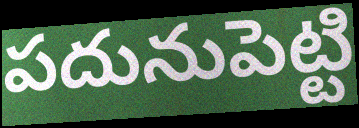
పదునుపెట్టి